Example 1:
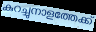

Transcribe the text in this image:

കുറച്ചുനാളത്തേക്ക്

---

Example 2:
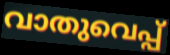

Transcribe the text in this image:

വാതുവെപ്പ്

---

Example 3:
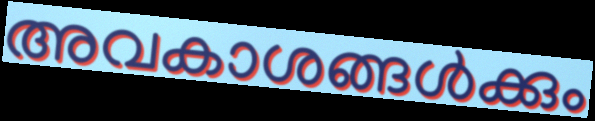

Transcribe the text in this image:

അവകാശങ്ങൾക്കും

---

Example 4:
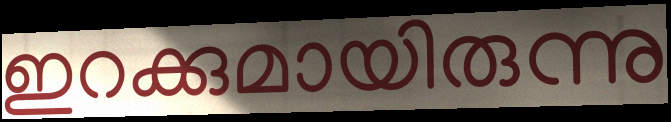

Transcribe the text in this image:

ഇറക്കുമായിരുന്നു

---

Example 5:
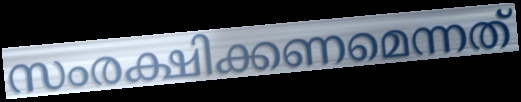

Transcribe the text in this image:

സംരക്ഷിക്കണമെന്നത്